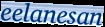
eelanesan